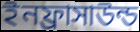
ইনফ্রাসাউন্ড